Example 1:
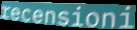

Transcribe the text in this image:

recensioni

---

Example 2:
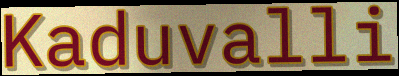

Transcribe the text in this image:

Kaduvalli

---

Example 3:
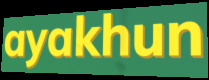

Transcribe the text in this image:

ayakhun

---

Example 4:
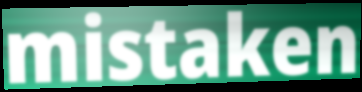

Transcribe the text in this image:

mistaken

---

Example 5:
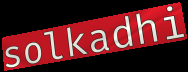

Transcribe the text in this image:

solkadhi